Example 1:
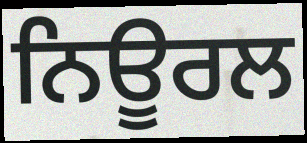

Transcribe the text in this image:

ਨਿਊਰਲ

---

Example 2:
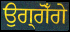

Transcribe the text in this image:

ਉਗ੍ਗੋਁਗੇ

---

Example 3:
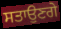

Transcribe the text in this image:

ਸਤਾਉਣਗੇ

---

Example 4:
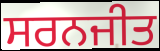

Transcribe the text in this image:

ਸਰਨਜੀਤ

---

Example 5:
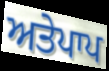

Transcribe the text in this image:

ਅਤੇਪਾਪ